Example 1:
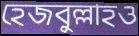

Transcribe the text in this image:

হেজবুল্লাহও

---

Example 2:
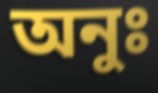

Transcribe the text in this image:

অনুঃ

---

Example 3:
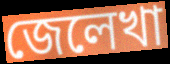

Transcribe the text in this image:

জেলেখা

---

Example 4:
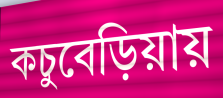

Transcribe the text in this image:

কচুবেড়িয়ায়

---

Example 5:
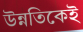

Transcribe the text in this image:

উন্নতিকেই